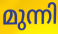
മുന്നി